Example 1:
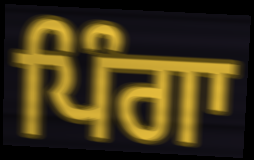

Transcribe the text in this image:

ਪਿੰਗਾ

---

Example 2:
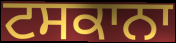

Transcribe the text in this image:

ਟਸਕਾਨਾ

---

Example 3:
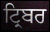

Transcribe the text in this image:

ਟ੍ਰਿਬਰ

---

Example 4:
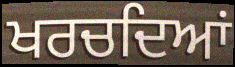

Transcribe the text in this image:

ਖਰਚਦਿਆਂ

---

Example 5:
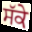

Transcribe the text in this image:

ਸੱਕੇ